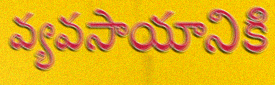
వ్యవసాయానికి